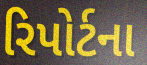
રિપોર્ટના